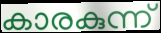
കാരകുന്ന്